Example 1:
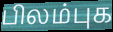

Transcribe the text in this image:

பிலம்புக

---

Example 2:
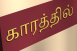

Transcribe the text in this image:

காரத்தில்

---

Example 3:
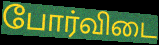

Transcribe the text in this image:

போர்விடை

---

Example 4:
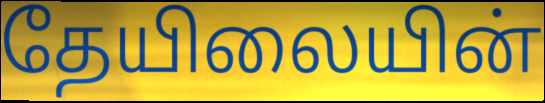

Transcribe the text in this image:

தேயிலையின்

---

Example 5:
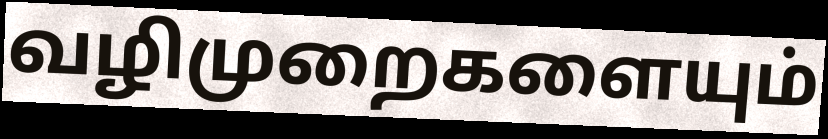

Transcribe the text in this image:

வழிமுறைகளையும்